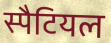
स्पैटियल